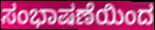
ಸಂಭಾಷಣೆಯಿಂದ